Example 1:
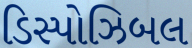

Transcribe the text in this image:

ડિસ્પોઝિબલ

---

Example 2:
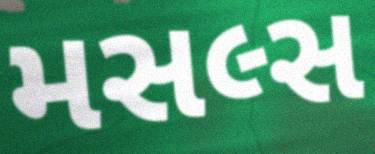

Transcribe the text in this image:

મસલ્સ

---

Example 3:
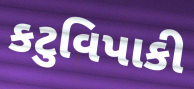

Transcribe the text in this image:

કટુવિપાકી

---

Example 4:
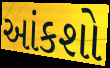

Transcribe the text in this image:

આંકશો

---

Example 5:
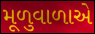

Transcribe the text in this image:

મૂળુવાળાએ